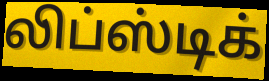
லிப்ஸ்டிக்